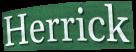
Herrick